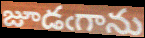
జూడఁగాను